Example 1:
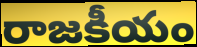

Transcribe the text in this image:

రాజకీయం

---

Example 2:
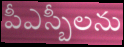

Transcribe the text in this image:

పీఎస్బీలను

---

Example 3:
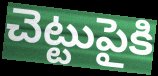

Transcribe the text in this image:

చెట్టుపైకి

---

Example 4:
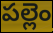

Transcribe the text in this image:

పల్లెం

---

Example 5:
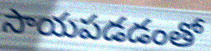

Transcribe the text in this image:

సాయపడడంతో